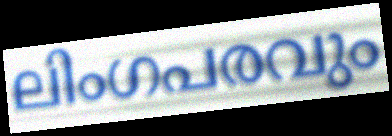
ലിംഗപരവും